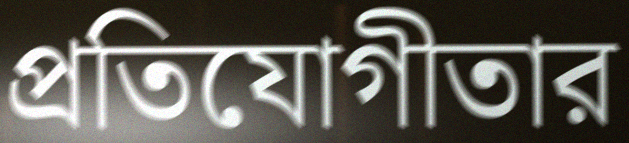
প্রতিযোগীতার